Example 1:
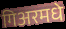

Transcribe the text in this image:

गिअरमधे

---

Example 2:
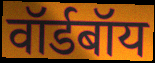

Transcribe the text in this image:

वॉर्डबॉय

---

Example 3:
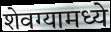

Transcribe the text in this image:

शेवग्यामध्ये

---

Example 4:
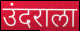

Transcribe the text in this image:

उंदराला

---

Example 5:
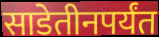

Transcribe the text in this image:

साडेतीनपर्यंत